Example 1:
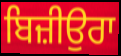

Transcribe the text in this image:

ਬਿਜ਼ੀਉਰਾ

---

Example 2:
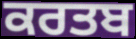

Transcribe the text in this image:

ਕਰਤਬ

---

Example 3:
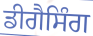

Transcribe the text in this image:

ਡੀਗੈਸਿੰਗ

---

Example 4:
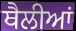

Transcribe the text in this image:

ਥੈਲੀਆਂ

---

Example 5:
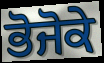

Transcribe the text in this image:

ਭੋਜੋਕੇ